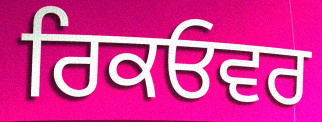
ਰਿਕਓਵਰ